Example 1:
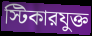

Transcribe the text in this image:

স্টিকারযুক্ত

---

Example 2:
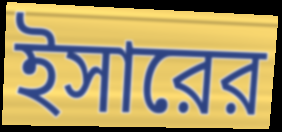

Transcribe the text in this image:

ইসারের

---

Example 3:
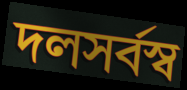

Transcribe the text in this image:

দলসর্বস্ব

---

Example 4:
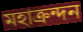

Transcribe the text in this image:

মহাক্রন্দন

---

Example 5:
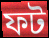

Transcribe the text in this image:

ফট